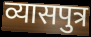
व्यासपुत्र